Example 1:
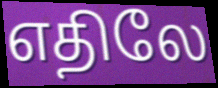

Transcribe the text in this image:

எதிலே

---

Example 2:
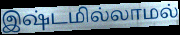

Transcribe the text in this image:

இஷ்டமில்லாமல்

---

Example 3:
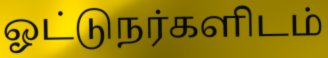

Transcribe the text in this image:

ஓட்டுநர்களிடம்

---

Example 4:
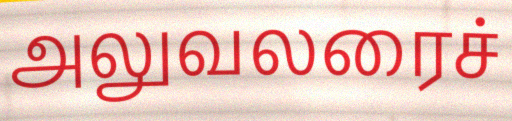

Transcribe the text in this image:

அலுவலரைச்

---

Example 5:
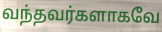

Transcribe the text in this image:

வந்தவர்களாகவே